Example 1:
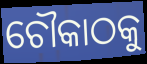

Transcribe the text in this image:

ଚୌକାଠକୁ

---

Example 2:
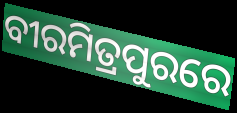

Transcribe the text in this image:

ବୀରମିତ୍ରପୁରରେ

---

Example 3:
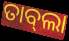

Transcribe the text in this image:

ତାବ୍‌ଲା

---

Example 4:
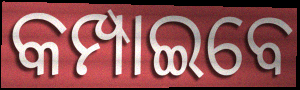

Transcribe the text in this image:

କମ୍ପାଇବେ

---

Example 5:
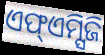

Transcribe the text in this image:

ଏଫ୍ଏମ୍ସିଜି